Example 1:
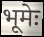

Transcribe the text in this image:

भूमेः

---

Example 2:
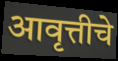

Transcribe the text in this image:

आवृत्तीचे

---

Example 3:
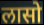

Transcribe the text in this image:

लासो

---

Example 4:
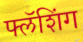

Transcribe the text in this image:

फ्लॅशिंग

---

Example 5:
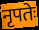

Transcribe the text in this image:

नृपतेः